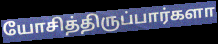
யோசித்திருப்பார்களா